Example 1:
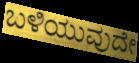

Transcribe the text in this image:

ಬಳಿಯುವುದೇ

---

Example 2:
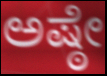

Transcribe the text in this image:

ಅಷ್ಠೇ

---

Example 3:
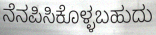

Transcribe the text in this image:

ನೆನಪಿಸಿಕೊಳ್ಳಬಹುದು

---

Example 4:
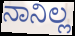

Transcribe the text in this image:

ನಾನಿಲ್ಲ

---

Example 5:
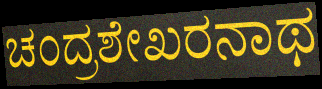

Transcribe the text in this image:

ಚಂದ್ರಶೇಖರನಾಥ